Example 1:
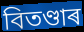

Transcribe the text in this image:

বিতণ্ডাৰ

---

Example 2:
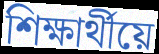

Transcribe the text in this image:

শিক্ষাৰ্থীয়ে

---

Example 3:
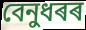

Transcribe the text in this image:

বেনুধৰৰ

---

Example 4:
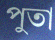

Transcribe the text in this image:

পুতা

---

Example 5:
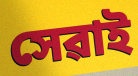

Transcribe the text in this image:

সেৱাই